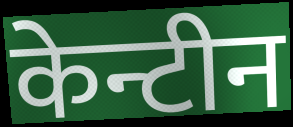
केन्टीन